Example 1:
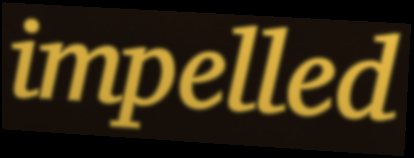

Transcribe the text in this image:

impelled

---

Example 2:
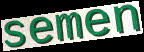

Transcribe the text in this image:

semen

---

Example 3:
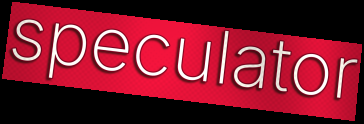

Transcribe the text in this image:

speculator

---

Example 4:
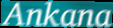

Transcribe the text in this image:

Ankana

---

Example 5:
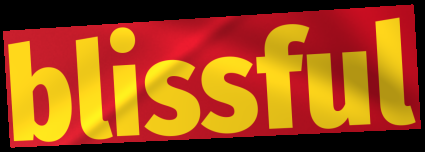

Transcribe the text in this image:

blissful